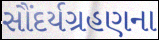
સૌંદર્યગ્રહણના